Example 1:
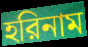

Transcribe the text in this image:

হরিনাম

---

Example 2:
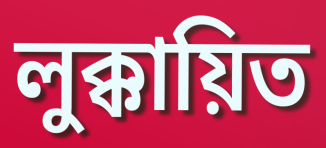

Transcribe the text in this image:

লুক্কায়িত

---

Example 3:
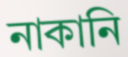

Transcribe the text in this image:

নাকানি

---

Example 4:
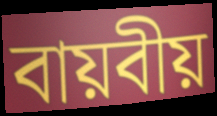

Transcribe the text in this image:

বায়বীয়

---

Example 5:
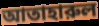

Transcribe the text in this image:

আতাহারুল